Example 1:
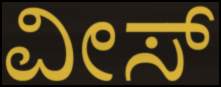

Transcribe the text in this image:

ವೀಸ್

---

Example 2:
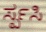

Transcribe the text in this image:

ರ್ಸ್ಪಸಿ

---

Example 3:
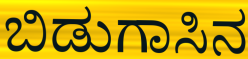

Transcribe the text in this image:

ಬಿಡುಗಾಸಿನ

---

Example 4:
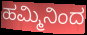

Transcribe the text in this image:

ಹಮ್ಮಿನಿಂದ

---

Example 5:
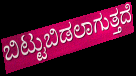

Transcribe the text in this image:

ಬಿಟ್ಟುಬಿಡಲಾಗುತ್ತದೆ